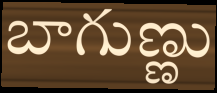
బాగుణ్ణు